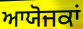
ਆਯੋਜਕਾਂ